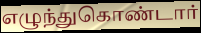
எழுந்துகொண்டார்